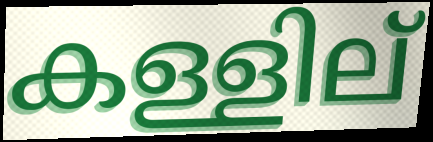
കള്ളില്